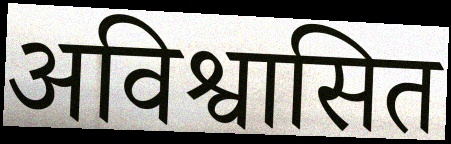
अविश्वासित